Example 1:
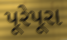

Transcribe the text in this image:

પૂરેપૂરા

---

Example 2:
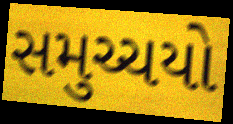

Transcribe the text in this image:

સમુચ્ચયો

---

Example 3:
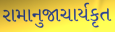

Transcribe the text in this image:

રામાનુજાચાર્યકૃત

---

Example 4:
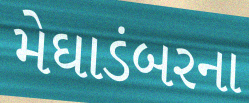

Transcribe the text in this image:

મેઘાડંબરના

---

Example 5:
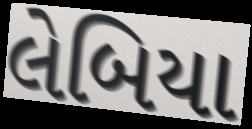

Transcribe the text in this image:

લેબિયા